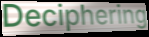
Deciphering